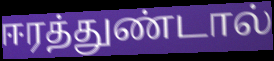
ஈரத்துண்டால்